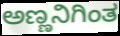
ಅಣ್ಣನಿಗಿಂತ